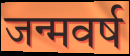
जन्मवर्ष